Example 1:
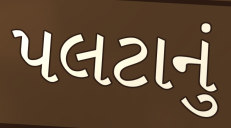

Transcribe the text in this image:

પલટાનું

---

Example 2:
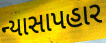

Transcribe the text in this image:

ન્યાસાપહાર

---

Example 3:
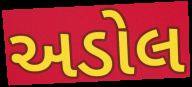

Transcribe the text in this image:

અડોલ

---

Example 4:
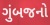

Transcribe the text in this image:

ગુંબજનો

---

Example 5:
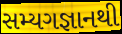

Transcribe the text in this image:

સમ્યગજ્ઞાનથી